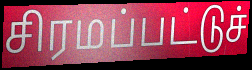
சிரமப்பட்டுச்